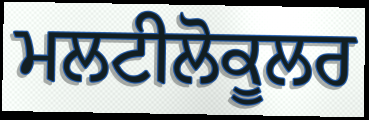
ਮਲਟੀਲੋਕੂਲਰ